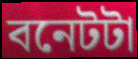
বনেটটা